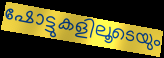
ഷോട്ടുകളിലൂടെയും